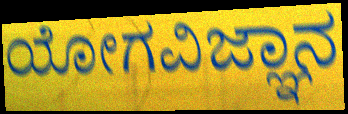
ಯೋಗವಿಜ್ಞಾನ